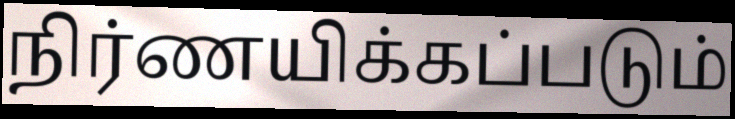
நிர்ணயிக்கப்படும்